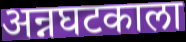
अन्नघटकाला